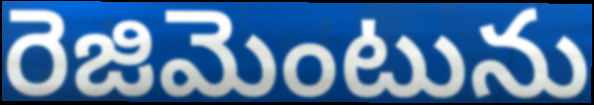
రెజిమెంటును